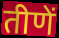
तीणें